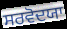
ਸਰਵੋਦਯਾ